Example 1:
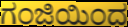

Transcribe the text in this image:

ಗಂಜಿಯಿಂದ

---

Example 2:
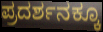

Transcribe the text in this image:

ಪ್ರದರ್ಶನಕ್ಕೂ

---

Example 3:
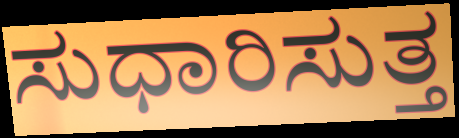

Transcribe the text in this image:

ಸುಧಾರಿಸುತ್ತ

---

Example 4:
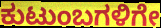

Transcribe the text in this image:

ಕುಟುಂಬಗಳಿಗೇ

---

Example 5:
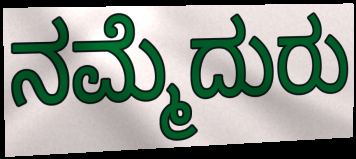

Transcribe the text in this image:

ನಮ್ಮೆದುರು